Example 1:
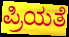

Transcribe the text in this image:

ಪ್ರಿಯತೆ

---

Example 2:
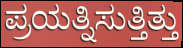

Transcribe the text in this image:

ಪ್ರಯತ್ನಿಸುತ್ತಿತ್ತು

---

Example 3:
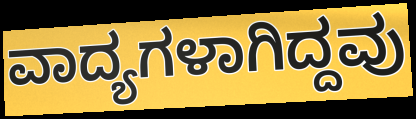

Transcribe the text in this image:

ವಾದ್ಯಗಳಾಗಿದ್ದವು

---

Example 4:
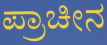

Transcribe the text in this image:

ಪ್ರಾಚೀನ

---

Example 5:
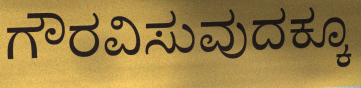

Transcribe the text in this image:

ಗೌರವಿಸುವುದಕ್ಕೂ